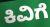
ಕಿವಿಗೆ